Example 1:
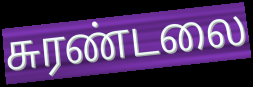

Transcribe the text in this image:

சுரண்டலை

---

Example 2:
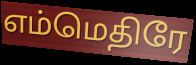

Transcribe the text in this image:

எம்மெதிரே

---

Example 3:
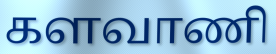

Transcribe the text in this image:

களவாணி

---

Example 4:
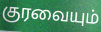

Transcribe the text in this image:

குரவையும்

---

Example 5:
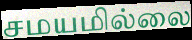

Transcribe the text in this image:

சமயமில்லை